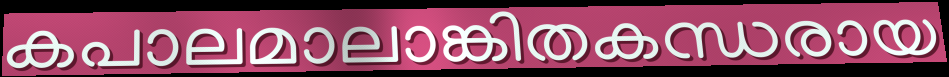
കപാലമാലാങ്കിതകന്ധരായ